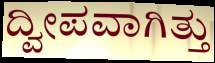
ದ್ವೀಪವಾಗಿತ್ತು